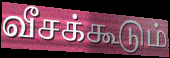
வீசக்கூடும்